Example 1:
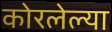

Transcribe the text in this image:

कोरलेल्या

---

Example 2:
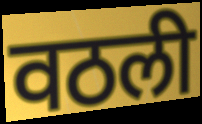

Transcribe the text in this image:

वठली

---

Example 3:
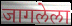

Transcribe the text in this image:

जागलेला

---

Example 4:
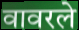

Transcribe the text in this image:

वावरले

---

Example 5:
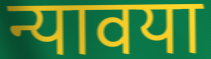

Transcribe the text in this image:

न्यावया